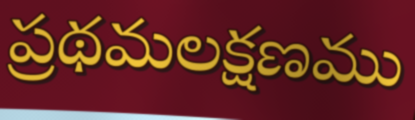
ప్రథమలక్షణము